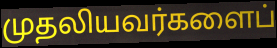
முதலியவர்களைப்